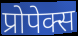
प्रोपेक्स